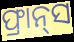
ଫ୍ରାନ୍‍ସ